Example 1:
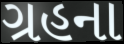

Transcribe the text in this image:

ગ્રહના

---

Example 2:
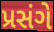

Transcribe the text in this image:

પ્રસંગે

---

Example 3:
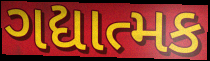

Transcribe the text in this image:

ગદ્યાત્મક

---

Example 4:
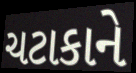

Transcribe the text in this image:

ચટાકાને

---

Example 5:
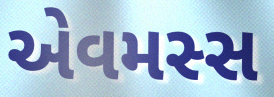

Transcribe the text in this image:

એવમસ્સ